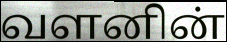
வளனின்